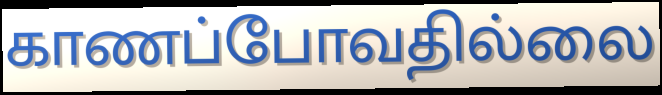
காணப்போவதில்லை